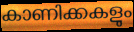
കാണിക്കകളും